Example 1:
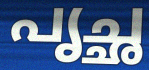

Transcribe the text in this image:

പൃച്ഛ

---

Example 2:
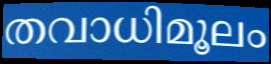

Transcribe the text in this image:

തവാധിമൂലം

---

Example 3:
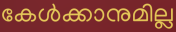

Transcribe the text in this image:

കേൾക്കാനുമില്ല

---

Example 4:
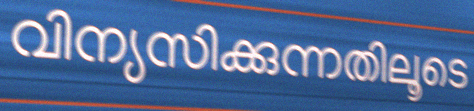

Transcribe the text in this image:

വിന്യസിക്കുന്നതിലൂടെ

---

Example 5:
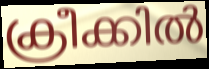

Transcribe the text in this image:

ക്രീക്കിൽ